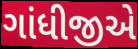
ગાંધીજીએ